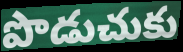
పొడుచుకు